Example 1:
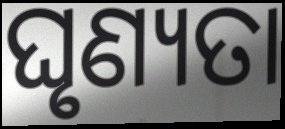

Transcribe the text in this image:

ଘୃଣ୍ୟତା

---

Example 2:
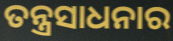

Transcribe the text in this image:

ତନ୍ତ୍ରସାଧନାର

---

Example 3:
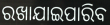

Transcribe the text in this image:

ରଖାଯାଇପାରିବ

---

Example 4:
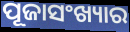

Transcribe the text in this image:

ପୂଜାସଂଖ୍ୟାର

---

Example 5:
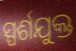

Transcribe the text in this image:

ସ୍ପର୍ଶଯୁକ୍ତ